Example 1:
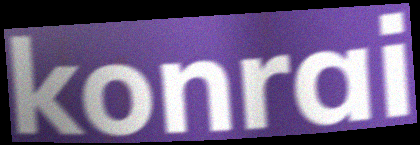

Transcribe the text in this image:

konrai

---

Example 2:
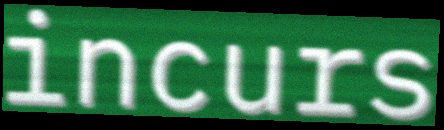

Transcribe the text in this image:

incurs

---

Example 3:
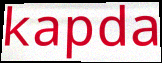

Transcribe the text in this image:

kapda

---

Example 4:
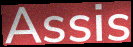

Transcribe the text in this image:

Assis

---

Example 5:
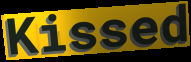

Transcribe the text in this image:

Kissed